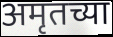
अमृतच्या